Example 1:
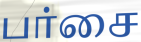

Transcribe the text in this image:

பர்சை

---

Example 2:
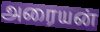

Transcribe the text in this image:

அரையன்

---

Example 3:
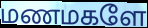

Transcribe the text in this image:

மணமகளே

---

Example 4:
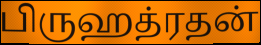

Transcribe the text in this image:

பிருஹத்ரதன்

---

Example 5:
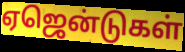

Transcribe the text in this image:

ஏஜென்டுகள்